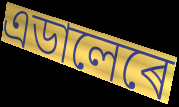
এডালেৰে